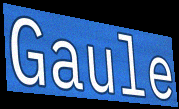
Gaule